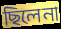
ছিলেনা